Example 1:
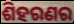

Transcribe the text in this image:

ଶିହରଣର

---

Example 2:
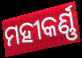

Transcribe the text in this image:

ମହୀକର୍ଣ୍ଣ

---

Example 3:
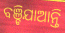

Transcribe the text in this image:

ବଞ୍ଚିଯାଆନ୍ତି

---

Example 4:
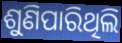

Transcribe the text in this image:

ଶୁଣିପାରିଥିଲି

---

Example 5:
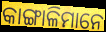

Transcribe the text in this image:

କାଙ୍ଗାଳିମାନେ